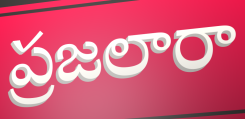
ప్రజలారా